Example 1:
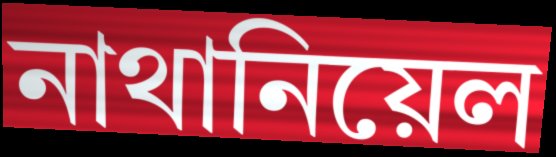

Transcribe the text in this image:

নাথানিয়েল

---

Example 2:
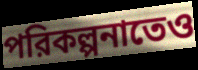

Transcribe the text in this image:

পরিকল্পনাতেও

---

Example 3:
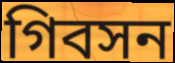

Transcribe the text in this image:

গিবসন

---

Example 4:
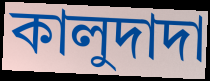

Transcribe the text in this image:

কালুদাদা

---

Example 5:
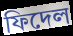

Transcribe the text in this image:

ফিদেল